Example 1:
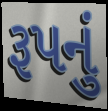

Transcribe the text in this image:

રૂપનું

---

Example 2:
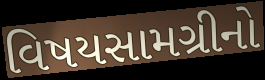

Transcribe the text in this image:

વિષયસામગ્રીનો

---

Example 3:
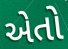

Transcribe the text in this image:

એતો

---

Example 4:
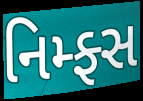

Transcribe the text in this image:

નિમ્ફ્સ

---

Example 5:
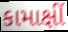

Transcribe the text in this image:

કામાક્ષીં